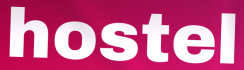
hostel